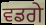
ਵਡਗੇ